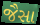
જૈસા